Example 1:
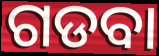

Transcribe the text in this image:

ଗଡବା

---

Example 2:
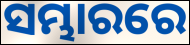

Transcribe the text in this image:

ସମ୍ଭାରରେ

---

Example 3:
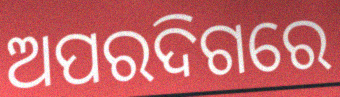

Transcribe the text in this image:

ଅପରଦିଗରେ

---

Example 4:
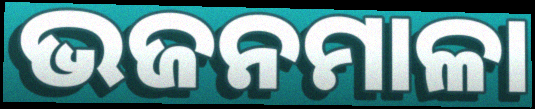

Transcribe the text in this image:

ଭଜନମାଳା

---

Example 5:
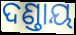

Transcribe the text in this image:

ଦଣ୍ଡାୟ